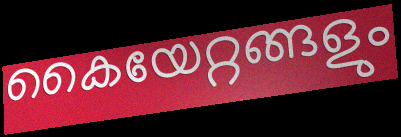
കൈയേറ്റങ്ങളും